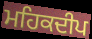
ਮਹਿਕਦੀਪ